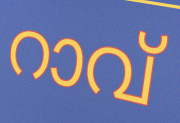
റാവ്